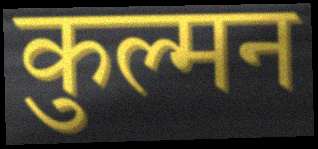
कुल्मन